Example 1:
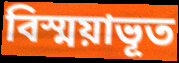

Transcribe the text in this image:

বিস্ময়াভূত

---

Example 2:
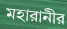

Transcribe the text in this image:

মহারানীর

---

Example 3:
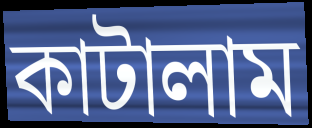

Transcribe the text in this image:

কাটালাম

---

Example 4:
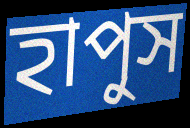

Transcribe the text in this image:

হাপুস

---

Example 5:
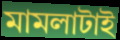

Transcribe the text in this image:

মামলাটাই